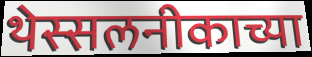
थेस्सलनीकाच्या